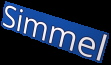
Simmel